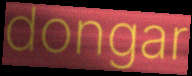
dongar